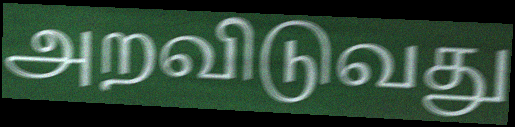
அறவிடுவது